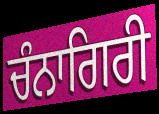
ਚੰਨਾਗਿਰੀ